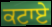
ਕਟਾਏ